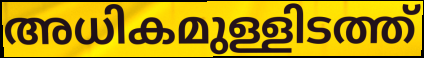
അധികമുള്ളിടത്ത്